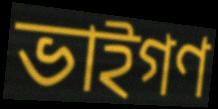
ভাইগণ